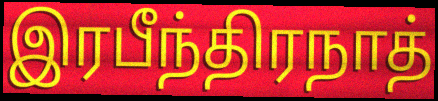
இரபீந்திரநாத்